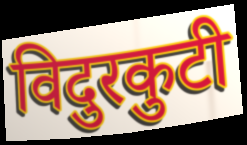
विदुरकुटी